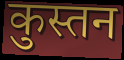
कुस्तन